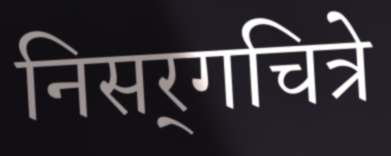
निसर्गचित्रे